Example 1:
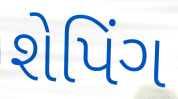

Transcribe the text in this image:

શેપિંગ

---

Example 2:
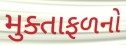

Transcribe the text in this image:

મુક્તાફળનો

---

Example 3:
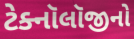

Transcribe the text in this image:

ટેક્નૉલૉજીનો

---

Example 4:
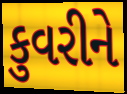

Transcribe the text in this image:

કુવરીને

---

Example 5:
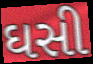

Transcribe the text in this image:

ઘસી